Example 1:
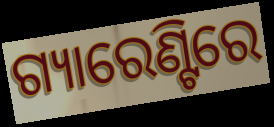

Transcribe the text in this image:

ଗ୍ୟାରେଣ୍ଟିରେ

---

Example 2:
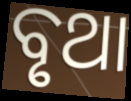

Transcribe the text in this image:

ବୃଥା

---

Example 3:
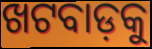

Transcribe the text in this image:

ଖଟବାଡ଼କୁ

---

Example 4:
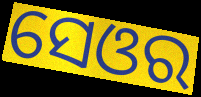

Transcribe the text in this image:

ସେଓର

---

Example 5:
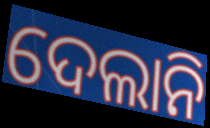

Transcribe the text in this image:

ଦେଲାନି